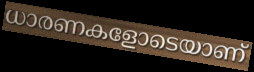
ധാരണകളോടെയാണ്